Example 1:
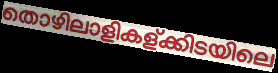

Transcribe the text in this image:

തൊഴിലാളികള്ക്കിടയിലെ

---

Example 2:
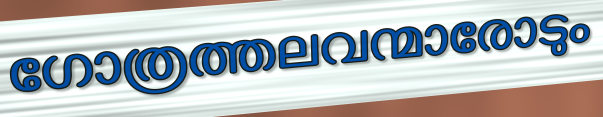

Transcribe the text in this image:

ഗോത്രത്തലവന്മാരോടും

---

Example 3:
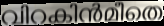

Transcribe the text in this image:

വിറകിൻമീതെ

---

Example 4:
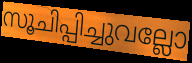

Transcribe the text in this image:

സൂചിപ്പിച്ചുവല്ലോ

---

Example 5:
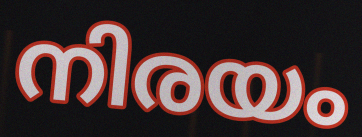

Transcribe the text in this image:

നിരയം